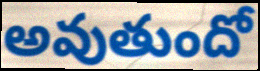
అవుతుందో